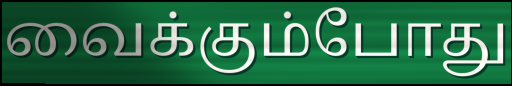
வைக்கும்போது